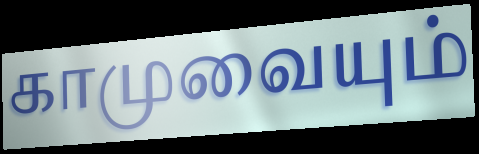
காமுவையும்